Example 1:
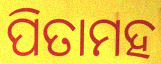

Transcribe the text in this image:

ପିତାମହ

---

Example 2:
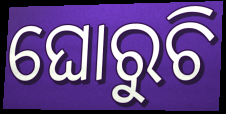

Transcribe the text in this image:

ଘୋରୁଚି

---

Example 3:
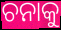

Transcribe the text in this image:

ଚନାକୁ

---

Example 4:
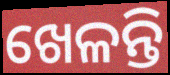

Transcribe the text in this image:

ଖେଳନ୍ତି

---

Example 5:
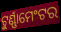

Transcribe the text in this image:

ଟୁର୍ଣ୍ଣାମେଂଟର